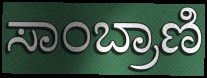
ಸಾಂಬ್ರಾಣಿ